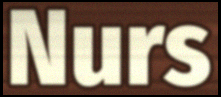
Nurs